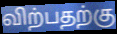
விற்பதற்கு